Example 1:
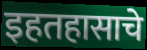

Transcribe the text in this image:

इहतहासाचे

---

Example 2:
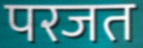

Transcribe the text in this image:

परजत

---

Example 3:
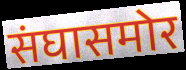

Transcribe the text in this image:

संघासमोर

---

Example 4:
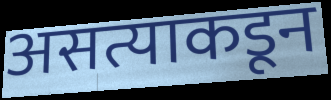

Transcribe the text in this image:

असत्याकडून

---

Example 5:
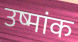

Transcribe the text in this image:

उष्मांक